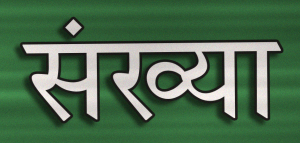
संख्या